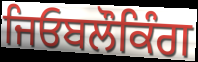
ਜਿਓਬਲੌਕਿੰਗ